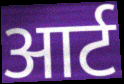
आर्ट